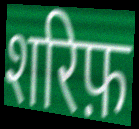
शरिफ़